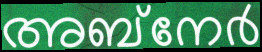
അബ്നേർ